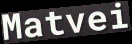
Matvei